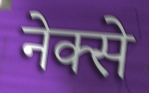
नेक्से